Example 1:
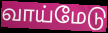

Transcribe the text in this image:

வாய்மேடு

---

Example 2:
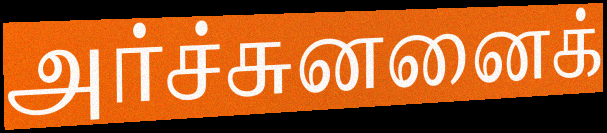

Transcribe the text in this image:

அர்ச்சுனனைக்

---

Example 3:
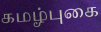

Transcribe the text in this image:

கமழ்புகை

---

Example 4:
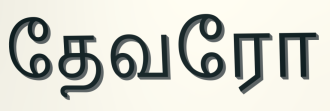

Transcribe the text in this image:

தேவரோ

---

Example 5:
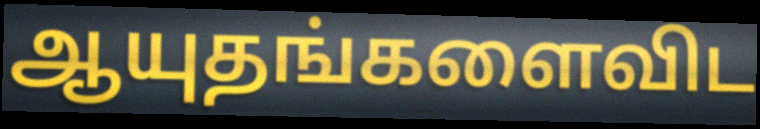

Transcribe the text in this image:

ஆயுதங்களைவிட